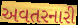
અવતરનારી